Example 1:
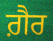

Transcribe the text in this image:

ਗ਼ੈਰ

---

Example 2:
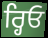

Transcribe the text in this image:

ਰ੍ਹਿਓ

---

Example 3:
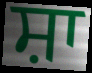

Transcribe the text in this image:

ਸ਼ਾ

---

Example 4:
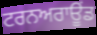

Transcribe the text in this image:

ਟਰਨਅਰਾਊਂਡ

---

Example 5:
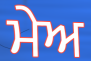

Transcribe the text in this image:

ਮੇਅ